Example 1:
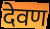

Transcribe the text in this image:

देवण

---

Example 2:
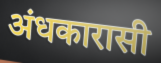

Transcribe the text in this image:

अंधकारासी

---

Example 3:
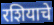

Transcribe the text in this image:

रशियाचे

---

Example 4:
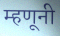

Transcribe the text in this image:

म्हणूनी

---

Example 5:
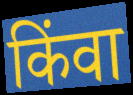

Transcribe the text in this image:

किंवा